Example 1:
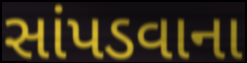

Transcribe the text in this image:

સાંપડવાના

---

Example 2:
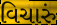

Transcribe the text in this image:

વિચારું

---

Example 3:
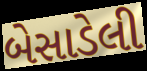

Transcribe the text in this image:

બેસાડેલી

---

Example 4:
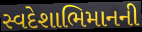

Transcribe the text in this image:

સ્વદેશાભિમાનની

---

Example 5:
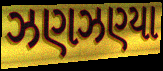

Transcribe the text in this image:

ઝણઝણ્યા